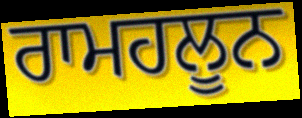
ਰਾਮਹਲੂਨ